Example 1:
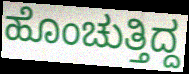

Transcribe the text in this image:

ಹೊಂಚುತ್ತಿದ್ದ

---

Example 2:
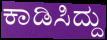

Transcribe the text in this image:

ಕಾಡಿಸಿದ್ದು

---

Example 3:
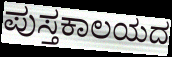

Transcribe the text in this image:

ಪುಸ್ತಕಾಲಯದ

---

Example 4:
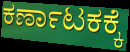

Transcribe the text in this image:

ಕರ್ಣಾಟಕಕ್ಕೆ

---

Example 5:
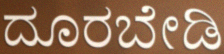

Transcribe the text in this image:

ದೂರಬೇಡಿ